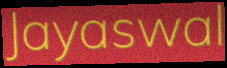
Jayaswal